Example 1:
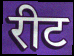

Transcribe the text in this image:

रीट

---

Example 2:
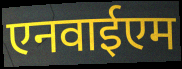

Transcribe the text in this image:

एनवाईएम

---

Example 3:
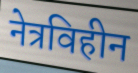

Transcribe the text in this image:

नेत्रविहीन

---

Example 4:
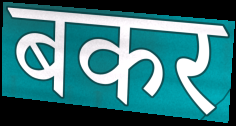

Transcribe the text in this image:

बकर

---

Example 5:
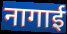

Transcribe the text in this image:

नागाई